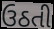
ઉઠતી